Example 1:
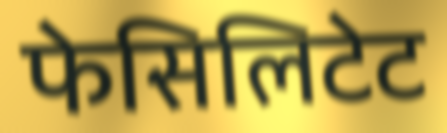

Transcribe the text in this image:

फेसिलिटेट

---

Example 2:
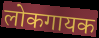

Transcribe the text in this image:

लोकगायक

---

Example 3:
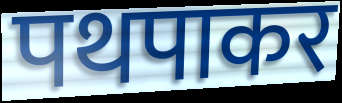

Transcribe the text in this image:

पथपाकर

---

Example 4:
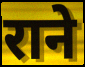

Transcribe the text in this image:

राने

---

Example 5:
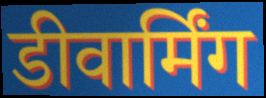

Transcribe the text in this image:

डीवार्मिंग